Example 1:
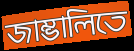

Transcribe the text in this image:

জাম্ভালিতে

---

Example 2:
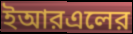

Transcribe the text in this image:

ইআরএলের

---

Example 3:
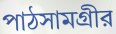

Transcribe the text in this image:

পাঠসামগ্রীর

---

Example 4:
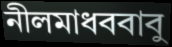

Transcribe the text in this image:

নীলমাধববাবু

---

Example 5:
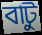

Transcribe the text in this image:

বাটু